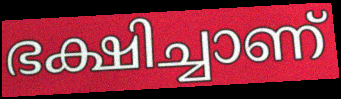
ഭക്ഷിച്ചാണ്